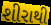
શીરાથી